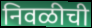
निवळीची